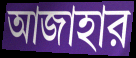
আজাহার